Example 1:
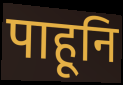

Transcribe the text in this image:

पाहूनि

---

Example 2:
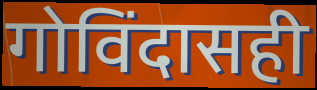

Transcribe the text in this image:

गोविंदासही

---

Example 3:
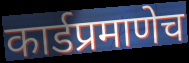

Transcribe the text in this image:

कार्डप्रमाणेच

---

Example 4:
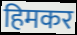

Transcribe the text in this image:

हिमकर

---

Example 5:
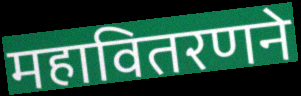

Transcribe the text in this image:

महावितरणने